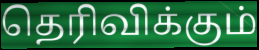
தெரிவிக்கும்